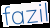
fazil